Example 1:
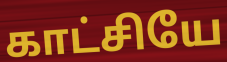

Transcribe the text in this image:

காட்சியே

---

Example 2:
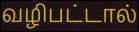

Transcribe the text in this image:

வழிபட்டால்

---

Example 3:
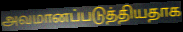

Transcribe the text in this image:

அவமானப்படுத்தியதாக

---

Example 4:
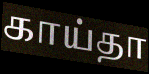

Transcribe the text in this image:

காய்தா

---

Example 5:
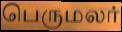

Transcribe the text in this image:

பெருமலர்